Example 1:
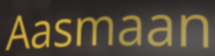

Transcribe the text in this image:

Aasmaan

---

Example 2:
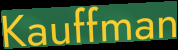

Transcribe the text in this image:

Kauffman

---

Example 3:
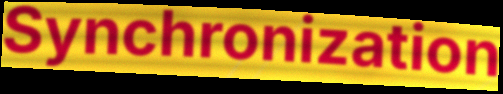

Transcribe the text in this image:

Synchronization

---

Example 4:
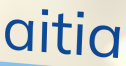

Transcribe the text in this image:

aitia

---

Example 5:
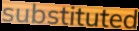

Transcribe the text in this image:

substituted